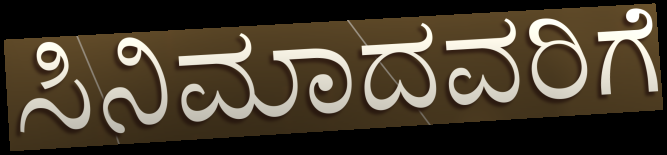
ಸಿನಿಮಾದವರಿಗೆ